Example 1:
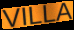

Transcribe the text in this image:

VILLA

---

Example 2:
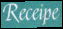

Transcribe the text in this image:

Receipe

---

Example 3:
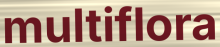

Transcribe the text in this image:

multiflora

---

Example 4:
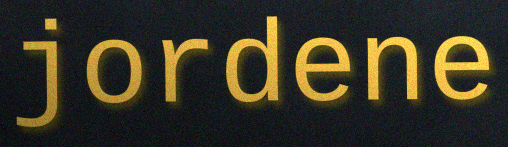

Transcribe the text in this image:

jordene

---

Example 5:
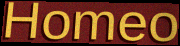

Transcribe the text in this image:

Homeo